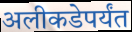
अलीकडेपर्यंत